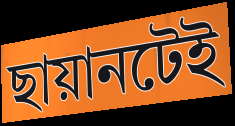
ছায়ানটেই